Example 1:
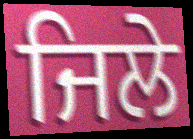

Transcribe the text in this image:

ਜਿਲੇ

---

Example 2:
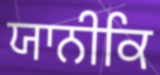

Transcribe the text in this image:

ਯਾਨੀਕਿ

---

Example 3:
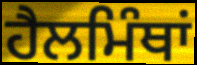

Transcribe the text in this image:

ਹੈਲਮਿੰਥਾਂ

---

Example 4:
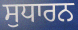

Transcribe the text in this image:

ਸੁਧਾਰਨ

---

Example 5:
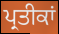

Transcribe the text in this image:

ਪ੍ਰਤੀਕਾਂ